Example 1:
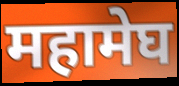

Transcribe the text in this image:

महामेघ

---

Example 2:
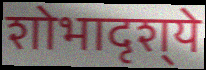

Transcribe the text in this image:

शोभादृश्ये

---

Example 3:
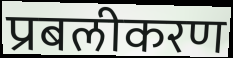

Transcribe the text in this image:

प्रबलीकरण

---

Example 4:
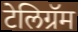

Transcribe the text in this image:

टेलिग्रॅम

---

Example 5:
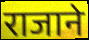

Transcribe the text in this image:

राजाने